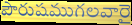
పౌరుషముగలవారై